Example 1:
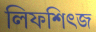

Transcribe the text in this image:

লিফশিৎজ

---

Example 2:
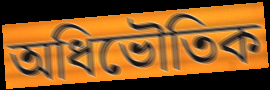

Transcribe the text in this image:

অধিভৌতিক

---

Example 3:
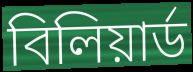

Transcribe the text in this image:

বিলিয়ার্ড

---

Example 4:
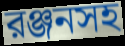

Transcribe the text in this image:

রঞ্জনসহ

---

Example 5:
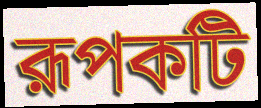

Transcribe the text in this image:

রূপকটি